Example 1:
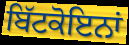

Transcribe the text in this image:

ਬਿੱਟਕੋਇਨਾਂ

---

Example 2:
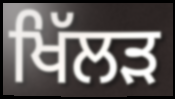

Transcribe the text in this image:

ਖਿੱਲੜ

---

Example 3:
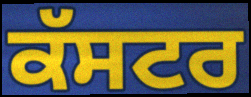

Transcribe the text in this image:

ਕੱਸਟਰ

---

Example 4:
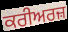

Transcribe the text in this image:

ਕਰੀਅਰਜ਼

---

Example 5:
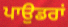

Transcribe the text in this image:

ਪਾਉਡਰਾਂ